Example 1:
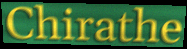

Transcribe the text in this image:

Chirathe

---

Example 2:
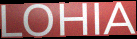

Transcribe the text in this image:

LOHIA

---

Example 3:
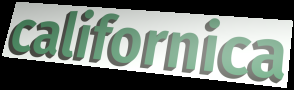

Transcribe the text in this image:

californica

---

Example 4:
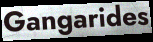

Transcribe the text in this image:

Gangarides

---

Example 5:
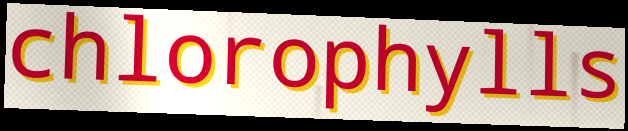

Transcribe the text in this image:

chlorophylls